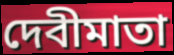
দেবীমাতা